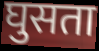
घुसता